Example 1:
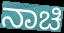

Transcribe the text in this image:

ನಾಚಿ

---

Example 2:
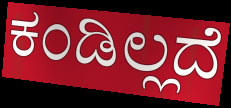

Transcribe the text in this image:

ಕಂಡಿಲ್ಲದೆ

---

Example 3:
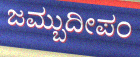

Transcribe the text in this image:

ಜಮ್ಬುದೀಪಂ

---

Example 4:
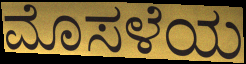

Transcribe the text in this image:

ಮೊಸಳೆಯ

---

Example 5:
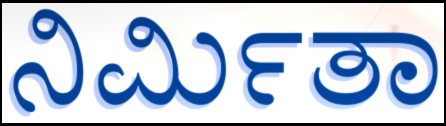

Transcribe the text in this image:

ನಿರ್ಮಿತಾ